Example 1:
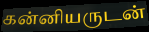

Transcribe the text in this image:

கன்னியருடன்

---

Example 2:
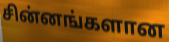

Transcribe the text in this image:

சின்னங்களான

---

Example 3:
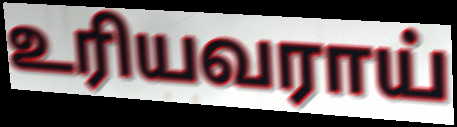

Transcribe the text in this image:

உரியவராய்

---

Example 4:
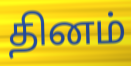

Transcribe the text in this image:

தினம்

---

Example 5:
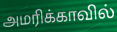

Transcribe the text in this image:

அமரிக்காவில்